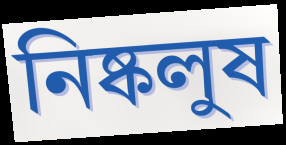
নিষ্কলুষ